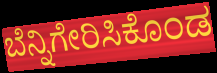
ಬೆನ್ನಿಗೇರಿಸಿಕೊಂಡ